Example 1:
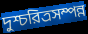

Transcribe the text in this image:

দুশ্চরিত্রসম্পন্ন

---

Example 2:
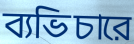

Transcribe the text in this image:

ব্যভিচারে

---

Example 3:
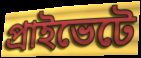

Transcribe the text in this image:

প্রাইভেটে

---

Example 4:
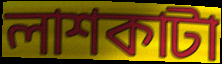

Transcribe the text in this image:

লাশকাটা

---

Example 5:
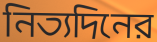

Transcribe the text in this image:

নিত্যদিনের